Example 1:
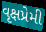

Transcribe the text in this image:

વૃક્ષપ્રેમી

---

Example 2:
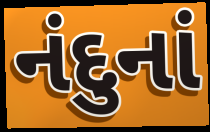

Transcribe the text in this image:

નંદુનાં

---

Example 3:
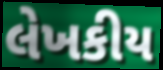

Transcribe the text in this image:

લેખકીય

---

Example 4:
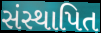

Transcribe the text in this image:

સંસ્થાપિત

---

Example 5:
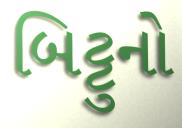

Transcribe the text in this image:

બિટ્ટુનો